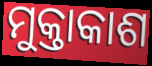
ମୁକ୍ତାକାଶ